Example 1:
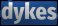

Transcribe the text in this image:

dykes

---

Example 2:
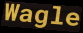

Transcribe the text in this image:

Wagle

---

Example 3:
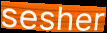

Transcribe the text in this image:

sesher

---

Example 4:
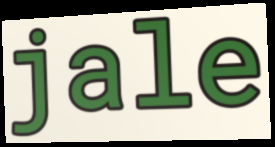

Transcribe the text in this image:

jale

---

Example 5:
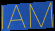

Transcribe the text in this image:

IAM